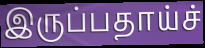
இருப்பதாய்ச்